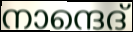
നാന്ദെദ്